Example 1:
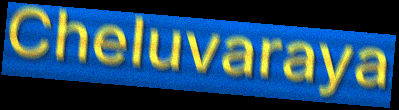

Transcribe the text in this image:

Cheluvaraya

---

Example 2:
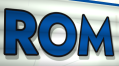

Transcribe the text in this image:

ROM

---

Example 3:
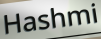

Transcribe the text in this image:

Hashmi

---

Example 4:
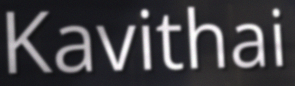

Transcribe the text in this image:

Kavithai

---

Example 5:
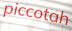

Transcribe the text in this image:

piccotah